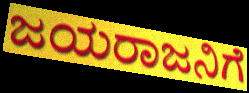
ಜಯರಾಜನಿಗೆ